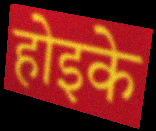
होइके